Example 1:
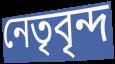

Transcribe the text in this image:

নেতৃবৃন্দ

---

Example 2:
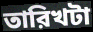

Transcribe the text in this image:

তারিখটা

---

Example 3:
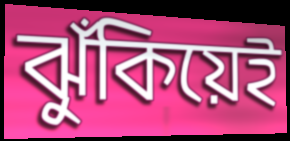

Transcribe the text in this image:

ঝুঁকিয়েই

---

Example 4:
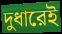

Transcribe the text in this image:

দুধারেই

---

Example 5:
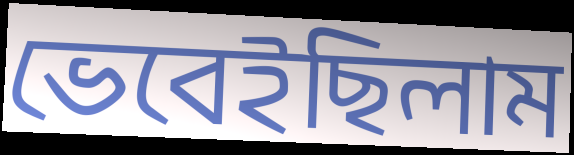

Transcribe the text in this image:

ভেবেইছিলাম